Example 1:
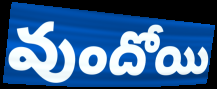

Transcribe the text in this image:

వుందోయి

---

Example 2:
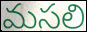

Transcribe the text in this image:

మసలి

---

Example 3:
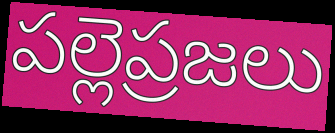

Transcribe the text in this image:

పల్లెప్రజలు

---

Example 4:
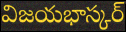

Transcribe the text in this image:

విజయభాస్కర్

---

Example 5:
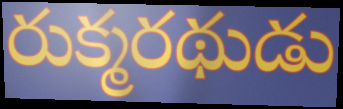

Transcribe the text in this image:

రుక్మరథుడు